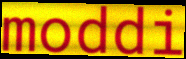
moddi